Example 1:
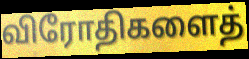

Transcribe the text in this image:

விரோதிகளைத்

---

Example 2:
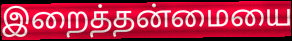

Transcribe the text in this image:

இறைத்தன்மையை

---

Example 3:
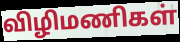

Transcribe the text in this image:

விழிமணிகள்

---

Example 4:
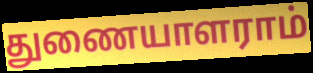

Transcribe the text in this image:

துணையாளராம்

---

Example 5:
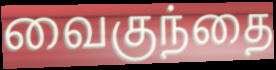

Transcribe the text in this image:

வைகுந்தை